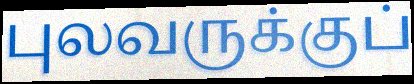
புலவருக்குப்